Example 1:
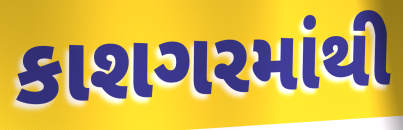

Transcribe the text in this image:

કાશગરમાંથી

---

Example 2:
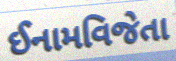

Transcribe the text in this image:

ઈનામવિજેતા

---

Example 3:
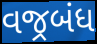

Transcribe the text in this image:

વજ્રબંધ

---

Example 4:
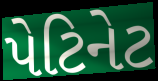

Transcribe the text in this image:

પેટિનેટ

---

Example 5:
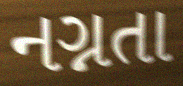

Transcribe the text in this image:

નગ્નતા